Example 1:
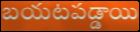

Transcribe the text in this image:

బయటపడ్డాయి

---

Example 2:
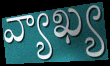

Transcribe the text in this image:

వ్యాఖ్య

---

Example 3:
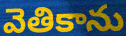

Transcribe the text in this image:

వెతికాను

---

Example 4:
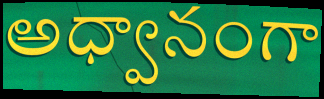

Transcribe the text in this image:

అధ్వానంగా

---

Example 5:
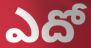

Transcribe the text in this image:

ఎదో